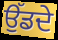
ਉੱਡਦੇ